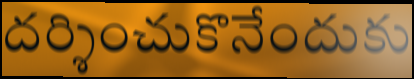
దర్శించుకొనేందుకు